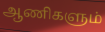
ஆணிகளும்